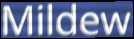
Mildew